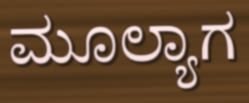
ಮೂಲ್ಯಾಗ